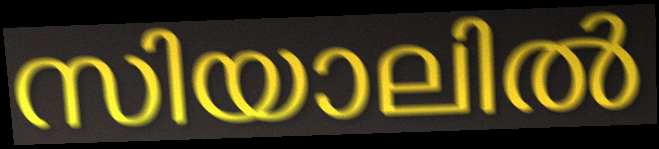
സിയാലിൽ